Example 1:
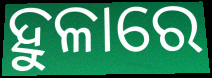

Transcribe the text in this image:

ହୁଳାରେ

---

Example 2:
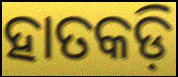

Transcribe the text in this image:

ହାତକଡ଼ି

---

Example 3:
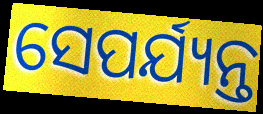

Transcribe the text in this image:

ସେପର୍ଯ୍ୟନ୍ତ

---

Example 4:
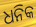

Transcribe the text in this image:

ଧନିକ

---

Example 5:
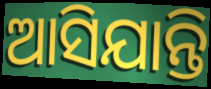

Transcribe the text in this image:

ଆସିଯାନ୍ତି